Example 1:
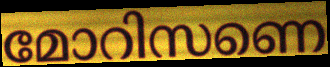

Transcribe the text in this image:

മോറിസണെ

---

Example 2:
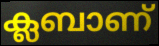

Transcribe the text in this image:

ക്ലബാണ്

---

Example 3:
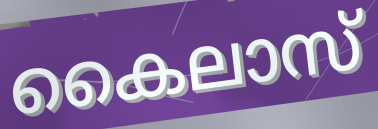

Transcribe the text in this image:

കൈലാസ്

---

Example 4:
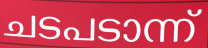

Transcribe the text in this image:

ചടപടാന്ന്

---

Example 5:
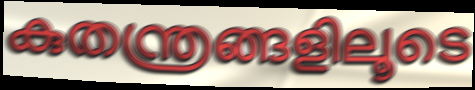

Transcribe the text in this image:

കുതന്ത്രങ്ങളിലൂടെ